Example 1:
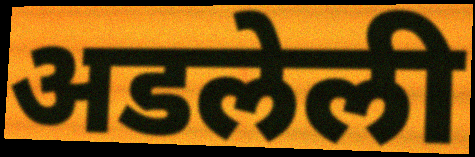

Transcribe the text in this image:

अडलेली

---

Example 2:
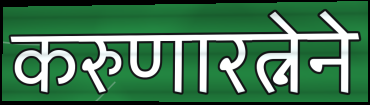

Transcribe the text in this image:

करुणारत्नेने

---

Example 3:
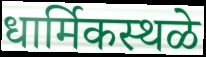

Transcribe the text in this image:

धार्मिकस्थळे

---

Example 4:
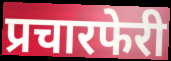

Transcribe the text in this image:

प्रचारफेरी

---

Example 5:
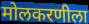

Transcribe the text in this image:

मोलकरणीला